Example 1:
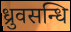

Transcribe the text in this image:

ध्रुवसन्धि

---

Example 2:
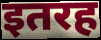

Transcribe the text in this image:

इतरह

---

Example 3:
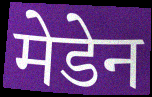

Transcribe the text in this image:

मेडेन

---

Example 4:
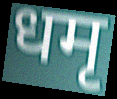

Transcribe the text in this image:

धमृ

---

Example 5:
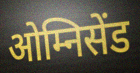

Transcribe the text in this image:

ओम्निसेंड